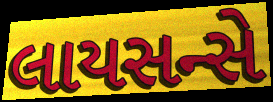
લાયસન્સે